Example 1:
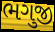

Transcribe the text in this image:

ભગુજી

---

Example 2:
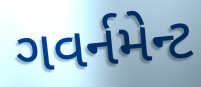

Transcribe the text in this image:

ગવર્નમેન્ટ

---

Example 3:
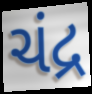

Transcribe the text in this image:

ચંદ્ર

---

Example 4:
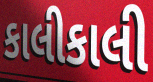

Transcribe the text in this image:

કાલીકાલી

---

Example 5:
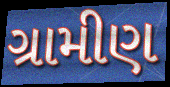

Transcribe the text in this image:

ગ્રામીણ